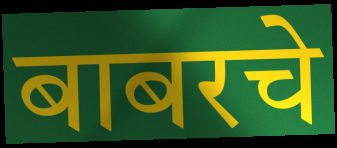
बाबरचे